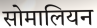
सोमालियन